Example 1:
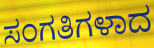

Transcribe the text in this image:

ಸಂಗತಿಗಳಾದ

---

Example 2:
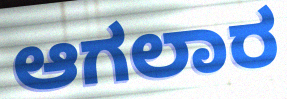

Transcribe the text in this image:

ಆಗಲಾರ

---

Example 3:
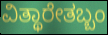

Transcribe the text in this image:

ವಿತ್ಥಾರೇತಬ್ಬಂ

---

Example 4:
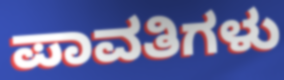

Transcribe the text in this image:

ಪಾವತಿಗಳು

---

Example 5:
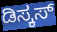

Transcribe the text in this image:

ಡಿಸ್ಕಸ್